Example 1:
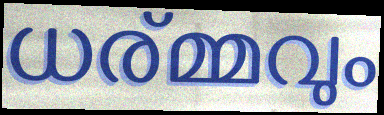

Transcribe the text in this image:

ധര്മ്മവും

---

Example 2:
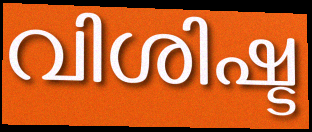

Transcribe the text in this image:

വിശിഷ്ട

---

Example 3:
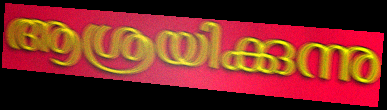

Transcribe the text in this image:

ആശ്രയിക്കുന്നു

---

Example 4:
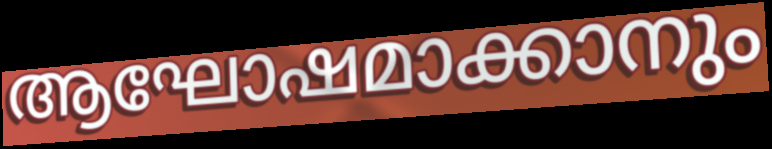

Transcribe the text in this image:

ആഘോഷമാക്കാനും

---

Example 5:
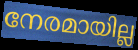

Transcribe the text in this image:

നേരമായില്ല